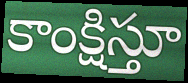
కాంక్షిస్తూ